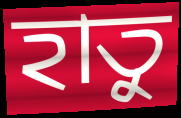
হাতু